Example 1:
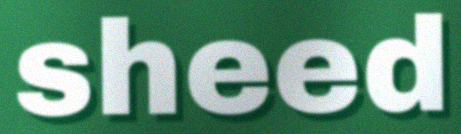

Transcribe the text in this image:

sheed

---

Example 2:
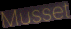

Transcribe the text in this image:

Musset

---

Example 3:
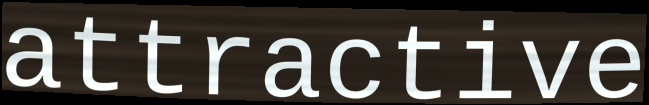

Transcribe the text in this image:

attractive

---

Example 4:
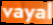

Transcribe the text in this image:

vayal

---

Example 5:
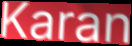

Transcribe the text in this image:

Karan